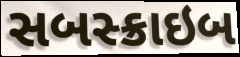
સબસ્ક્રાઇબ